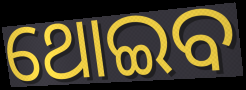
ଥୋଇବ